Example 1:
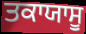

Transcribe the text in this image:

ਤਕਾਯਾਸੂ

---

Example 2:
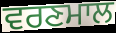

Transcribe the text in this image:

ਵਰਣਮਾਲ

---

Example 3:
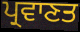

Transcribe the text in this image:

ਪ੍ਰਵਾਣਤ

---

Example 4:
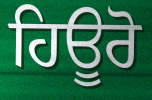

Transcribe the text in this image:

ਹਿਊਰੋ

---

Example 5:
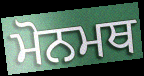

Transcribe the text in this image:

ਮੋਨਮਥ